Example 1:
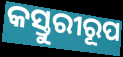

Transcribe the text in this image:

କସ୍ତୁରୀରୂପ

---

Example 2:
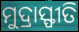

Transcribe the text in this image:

ମୁଦ୍ରାସ୍ଫୀତି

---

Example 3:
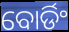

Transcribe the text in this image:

ବୋର୍ଡିଂ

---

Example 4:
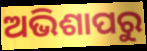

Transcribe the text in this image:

ଅଭିଶାପରୁ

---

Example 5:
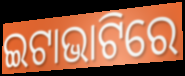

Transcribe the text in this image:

ଇଟାଭାଟିରେ